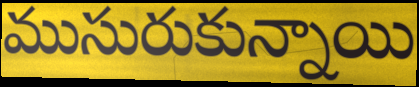
ముసురుకున్నాయి